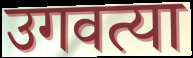
उगवत्या